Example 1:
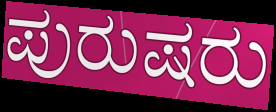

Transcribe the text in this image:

ಪುರುಷರು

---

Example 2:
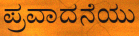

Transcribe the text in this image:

ಪ್ರವಾದನೆಯು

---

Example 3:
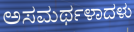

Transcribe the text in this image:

ಅಸಮರ್ಥಳಾದಳು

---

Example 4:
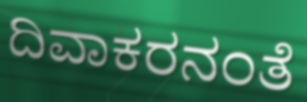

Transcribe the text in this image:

ದಿವಾಕರನಂತೆ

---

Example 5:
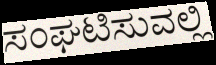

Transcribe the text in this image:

ಸಂಘಟಿಸುವಲ್ಲಿ